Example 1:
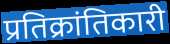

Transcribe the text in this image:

प्रतिक्रांतिकारी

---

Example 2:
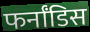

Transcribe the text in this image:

फर्नांडिस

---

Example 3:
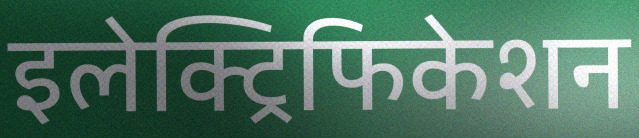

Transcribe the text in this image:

इलेक्ट्रिफिकेशन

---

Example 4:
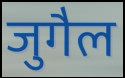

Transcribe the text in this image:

जुगैल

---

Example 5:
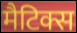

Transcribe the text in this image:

मैटिक्स